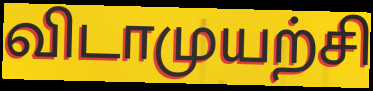
விடாமுயற்சி